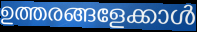
ഉത്തരങ്ങളേക്കാൾ